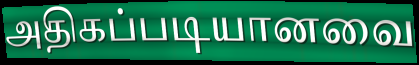
அதிகப்படியானவை